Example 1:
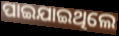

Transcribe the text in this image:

ପାଇଯାଇଥିଲେ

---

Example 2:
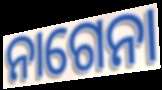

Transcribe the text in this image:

ନାଗେନା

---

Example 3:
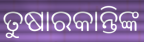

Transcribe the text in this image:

ତୁଷାରକାନ୍ତିଙ୍କ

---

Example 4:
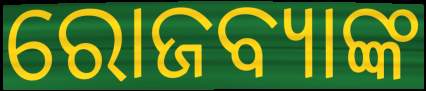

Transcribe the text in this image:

ରୋଜବ୍ୟାଙ୍କ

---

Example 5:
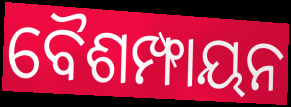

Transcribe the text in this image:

ବୈଶମ୍ଫାୟନ